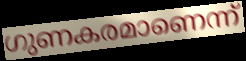
ഗുണകരമാണെന്ന്